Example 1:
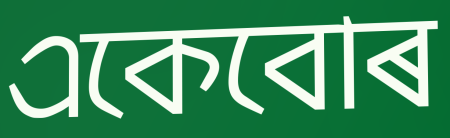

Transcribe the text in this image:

একেবোৰ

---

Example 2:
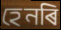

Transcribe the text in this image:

হেনৰি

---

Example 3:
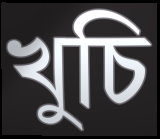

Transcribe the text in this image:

খুচি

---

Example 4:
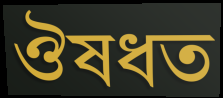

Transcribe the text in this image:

ঔষধত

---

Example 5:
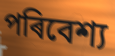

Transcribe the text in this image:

পৰিবেশ্য